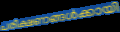
പരീക്ഷണങ്ങൾക്കായി